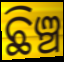
ଛିଞ୍ଚ